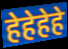
हेहेहेहे